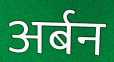
अर्बन